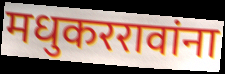
मधुकररावांना